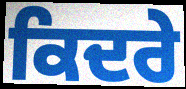
ਕਿਦਰੇ